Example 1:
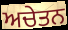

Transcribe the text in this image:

ਅਚੇਤਨ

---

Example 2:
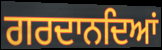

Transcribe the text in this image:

ਗਰਦਾਨਦਿਆਂ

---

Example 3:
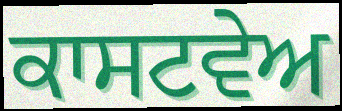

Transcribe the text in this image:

ਕਾਸਟਵੇਅ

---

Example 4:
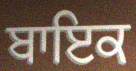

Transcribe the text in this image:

ਬਾਇਕ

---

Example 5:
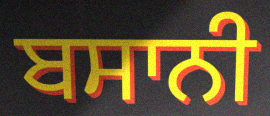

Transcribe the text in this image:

ਬਸਾਨੀ